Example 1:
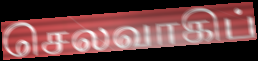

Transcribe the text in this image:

செலவாகிப்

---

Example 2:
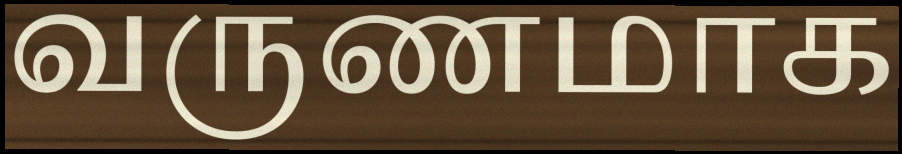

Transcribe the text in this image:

வருணமாக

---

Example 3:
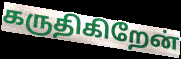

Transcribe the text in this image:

கருதிகிறேன்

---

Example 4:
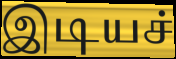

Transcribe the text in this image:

இடியச்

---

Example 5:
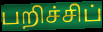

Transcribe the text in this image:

பறிச்சிப்